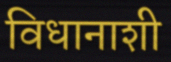
विधानाशी